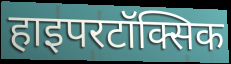
हाइपरटॉक्सिक